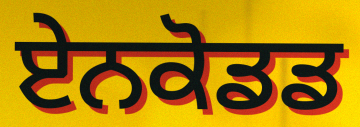
ਏਨਕੋਡਡ